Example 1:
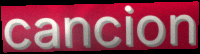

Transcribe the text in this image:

cancion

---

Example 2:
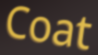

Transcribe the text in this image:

Coat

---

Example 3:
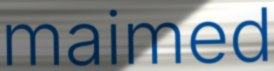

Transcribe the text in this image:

maimed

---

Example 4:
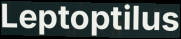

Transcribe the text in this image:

Leptoptilus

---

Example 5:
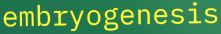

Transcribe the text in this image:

embryogenesis